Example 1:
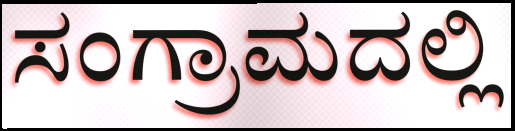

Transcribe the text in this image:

ಸಂಗ್ರಾಮದಲ್ಲಿ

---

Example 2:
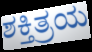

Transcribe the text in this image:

ಶಕ್ತಿತ್ರಯ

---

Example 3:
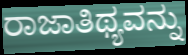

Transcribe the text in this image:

ರಾಜಾತಿಥ್ಯವನ್ನು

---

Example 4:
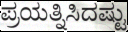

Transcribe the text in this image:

ಪ್ರಯತ್ನಿಸಿದಷ್ಟು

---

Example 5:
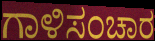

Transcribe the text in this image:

ಗಾಳಿಸಂಚಾರ